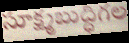
సూక్ష్మబుద్ధిగల